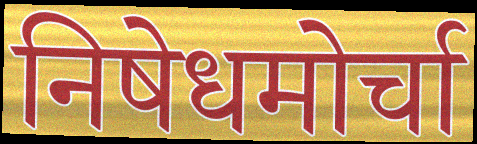
निषेधमोर्चा